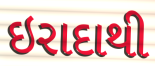
ઇરાદાથી